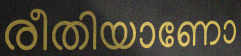
രീതിയാണോ